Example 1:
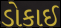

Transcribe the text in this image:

ડોકાઈ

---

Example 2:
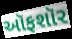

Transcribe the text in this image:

ઑફશૉર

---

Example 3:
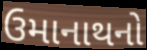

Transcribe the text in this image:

ઉમાનાથનો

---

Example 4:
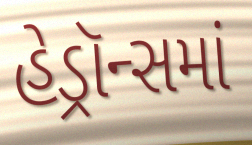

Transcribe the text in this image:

હેડ્રૉન્સમાં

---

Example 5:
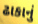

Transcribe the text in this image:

ઢાકાનું